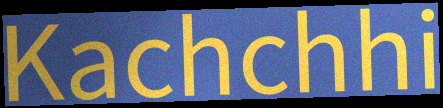
Kachchhi